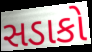
સડાકો